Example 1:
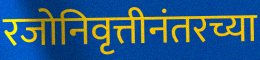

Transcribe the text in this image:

रजोनिवृत्तीनंतरच्या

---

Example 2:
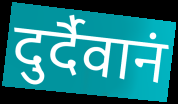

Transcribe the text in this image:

दुर्दैवानं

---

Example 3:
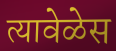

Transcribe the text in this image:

त्यावेळेस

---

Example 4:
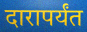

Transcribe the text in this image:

दारापर्यंत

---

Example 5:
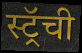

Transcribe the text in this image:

स्ट्रॅची